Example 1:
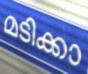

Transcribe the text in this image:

മടിക്കാ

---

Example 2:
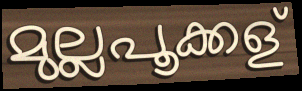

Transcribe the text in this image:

മുല്ലപൂക്കള്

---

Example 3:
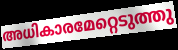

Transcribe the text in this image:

അധികാരമേറ്റെടുത്തു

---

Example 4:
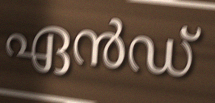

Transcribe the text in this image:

ഏൻഡ്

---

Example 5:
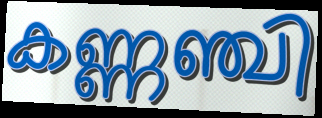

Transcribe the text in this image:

കണ്ണഞ്ചി